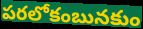
పరలోకంబునకుం